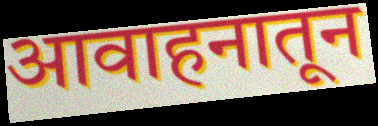
आवाहनातून